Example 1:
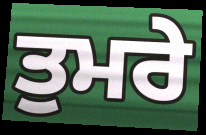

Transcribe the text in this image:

ਤੁਮਰੇ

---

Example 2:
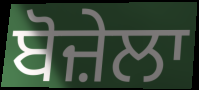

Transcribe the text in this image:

ਬੋਜ਼ੇਲਾ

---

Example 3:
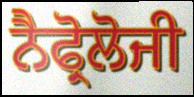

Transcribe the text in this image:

ਨੈਫ੍ਰੋਲੋਜੀ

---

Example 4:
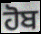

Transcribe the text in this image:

ਹੋਬ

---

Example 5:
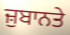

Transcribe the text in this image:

ਜ਼ੁਬਾਨਤੇ